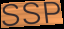
SSP